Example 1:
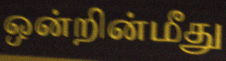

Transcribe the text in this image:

ஒன்றின்மீது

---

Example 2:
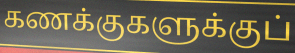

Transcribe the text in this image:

கணக்குகளுக்குப்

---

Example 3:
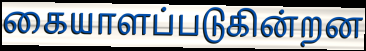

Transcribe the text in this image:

கையாளப்படுகின்றன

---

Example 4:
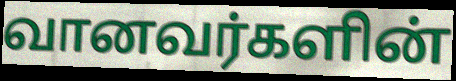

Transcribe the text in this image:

வானவர்களின்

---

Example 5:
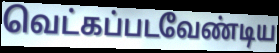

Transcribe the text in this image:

வெட்கப்படவேண்டிய